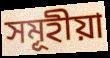
সমূহীয়া